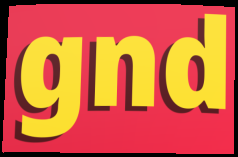
gnd